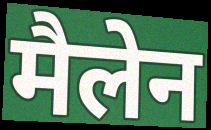
मैलेन